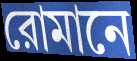
রোমানে